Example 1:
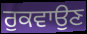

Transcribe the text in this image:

ਰੁਕਵਾਉਣ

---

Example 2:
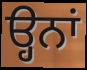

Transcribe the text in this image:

ੳ੍ਹਨਾਂ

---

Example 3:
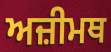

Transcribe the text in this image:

ਅਜ਼ੀਮਥ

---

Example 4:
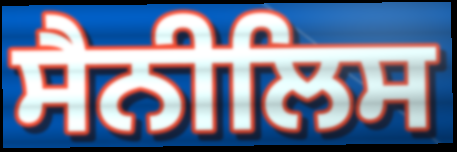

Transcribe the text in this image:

ਸੈਨੀਲਿਸ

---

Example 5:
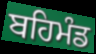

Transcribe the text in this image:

ਬਹਿਮੰਡ